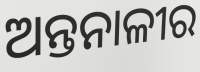
ଅନ୍ତନାଳୀର